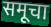
समूचा